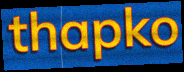
thapko